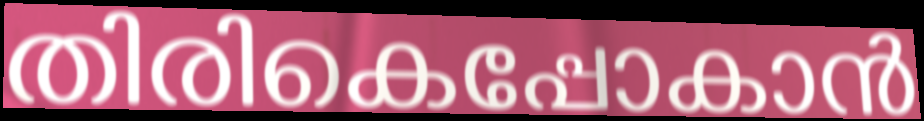
തിരികെപ്പോകാൻ